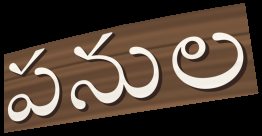
పనుల